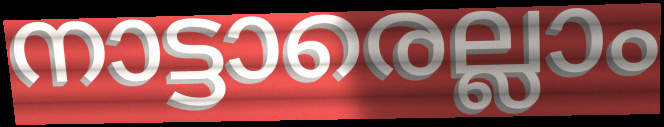
നാട്ടാരെല്ലാം